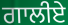
ਗਾਲੀਏ